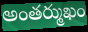
అంతర్ముఖం